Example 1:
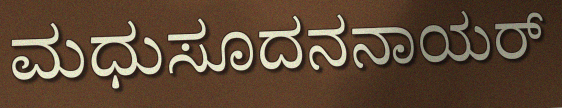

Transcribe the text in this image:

ಮಧುಸೂದನನಾಯರ್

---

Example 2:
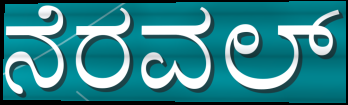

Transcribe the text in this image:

ನೆರವಲ್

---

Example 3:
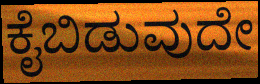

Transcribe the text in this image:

ಕೈಬಿಡುವುದೇ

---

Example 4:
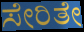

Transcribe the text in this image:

ಸೇರಿತೇ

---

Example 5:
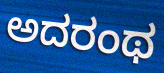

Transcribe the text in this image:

ಅದರಂಥ